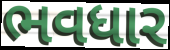
ભવધાર